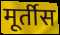
मूर्तीस